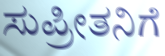
ಸುಪ್ರೀತನಿಗೆ